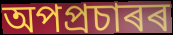
অপপ্ৰচাৰৰ